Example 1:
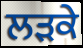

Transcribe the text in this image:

ਲਡ਼ਕੇ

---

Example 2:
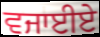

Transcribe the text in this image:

ਵਜਾਈਏ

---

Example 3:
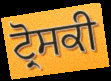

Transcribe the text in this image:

ਟ੍ਰੋਸਕੀ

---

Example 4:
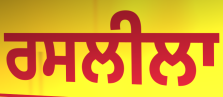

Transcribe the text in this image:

ਰਸਲੀਲਾ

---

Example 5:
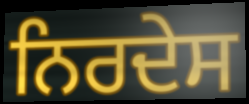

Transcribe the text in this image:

ਨਿਰਦੇਸ